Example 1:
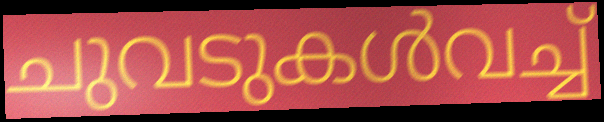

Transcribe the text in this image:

ചുവടുകൾവച്ച്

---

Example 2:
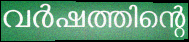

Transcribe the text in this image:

വർഷത്തിന്റെ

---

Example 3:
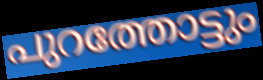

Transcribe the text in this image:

പുറത്തോട്ടും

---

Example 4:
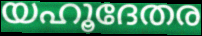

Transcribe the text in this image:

യഹൂദേതര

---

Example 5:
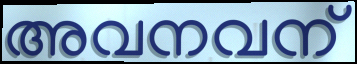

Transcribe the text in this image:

അവനവന്